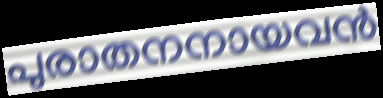
പുരാതനനായവൻ